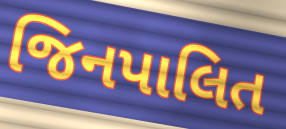
જિનપાલિત